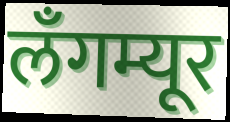
लँगम्यूर